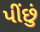
પીંછું